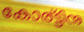
കോര്ട്ടിനു